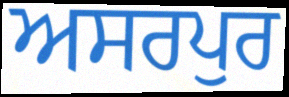
ਅਸਰਪੁਰ